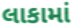
લાકામાં